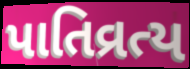
પાતિવ્રત્ય